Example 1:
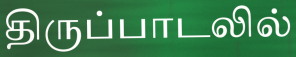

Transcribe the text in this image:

திருப்பாடலில்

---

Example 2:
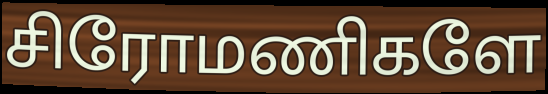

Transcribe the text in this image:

சிரோமணிகளே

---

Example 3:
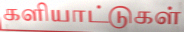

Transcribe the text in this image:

களியாட்டுகள்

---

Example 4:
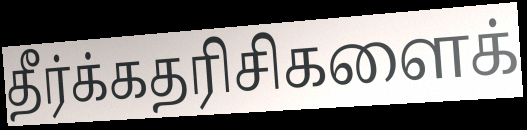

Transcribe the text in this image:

தீர்க்கதரிசிகளைக்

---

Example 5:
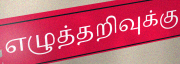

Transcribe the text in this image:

எழுத்தறிவுக்கு